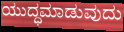
ಯುದ್ಧಮಾಡುವುದು